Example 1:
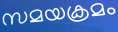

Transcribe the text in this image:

സമയക്രമം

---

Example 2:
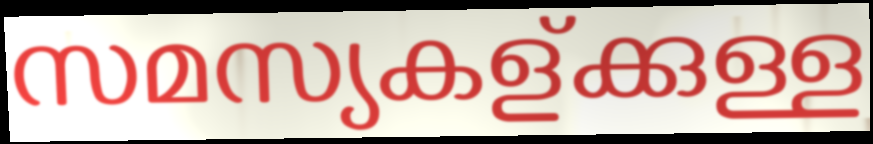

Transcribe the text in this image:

സമസ്യകള്ക്കുള്ള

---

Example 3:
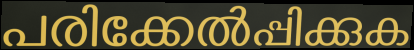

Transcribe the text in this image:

പരിക്കേൽപ്പിക്കുക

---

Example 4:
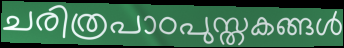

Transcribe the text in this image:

ചരിത്രപാഠപുസ്തകങ്ങൾ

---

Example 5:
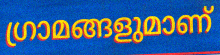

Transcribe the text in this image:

ഗ്രാമങ്ങളുമാണ്